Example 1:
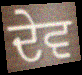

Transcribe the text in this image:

ਦੇਵ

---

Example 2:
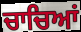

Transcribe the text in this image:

ਚਾਚਿਆਂ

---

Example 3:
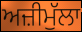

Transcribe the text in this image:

ਅਜ਼ੀਮੁੱਲਾ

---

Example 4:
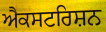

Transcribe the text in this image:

ਐਕਸਟਰਿਸ਼ਨ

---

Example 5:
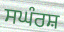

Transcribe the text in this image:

ਸਘੰਰਸ਼